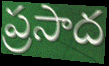
ప్రసాద